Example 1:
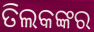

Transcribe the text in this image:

ତିଲକଙ୍କର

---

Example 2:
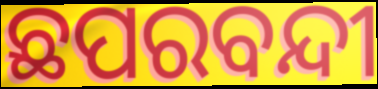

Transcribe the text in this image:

ଛପରବନ୍ଦୀ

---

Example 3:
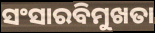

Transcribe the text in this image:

ସଂସାରବିମୁଖତା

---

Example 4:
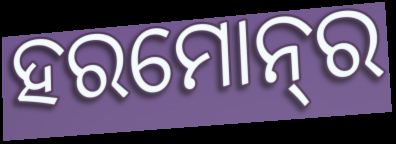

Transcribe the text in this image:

ହରମୋନ୍‍ର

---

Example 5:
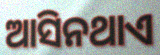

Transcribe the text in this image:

ଆସିନଥାଏ